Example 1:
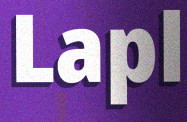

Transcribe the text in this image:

Lapl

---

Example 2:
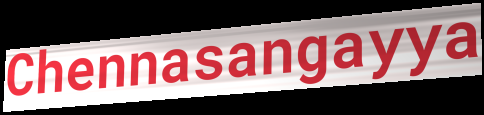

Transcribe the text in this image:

Chennasangayya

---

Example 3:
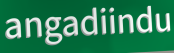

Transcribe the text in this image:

angadiindu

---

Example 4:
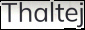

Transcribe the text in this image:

Thaltej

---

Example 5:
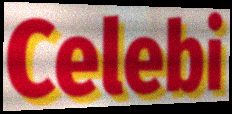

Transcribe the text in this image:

Celebi